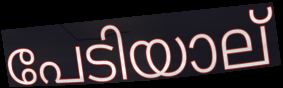
പേടിയാല്